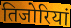
तिजोरियां